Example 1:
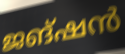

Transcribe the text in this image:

ജങ്ഷൻ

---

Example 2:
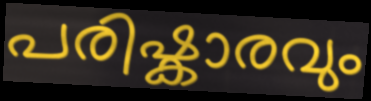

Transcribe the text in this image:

പരിഷ്കാരവും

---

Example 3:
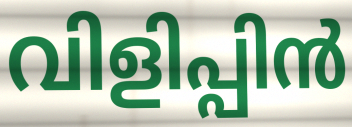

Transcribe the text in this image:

വിളിപ്പിൻ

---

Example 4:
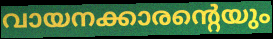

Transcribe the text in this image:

വായനക്കാരന്റെയും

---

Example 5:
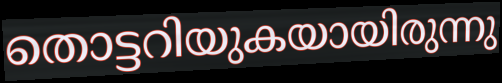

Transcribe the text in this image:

തൊട്ടറിയുകയായിരുന്നു